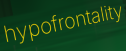
hypofrontality